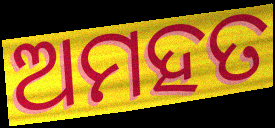
ଅମହତ